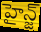
హైన్జ్